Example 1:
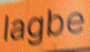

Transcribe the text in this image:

lagbe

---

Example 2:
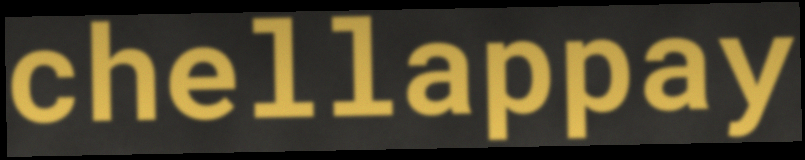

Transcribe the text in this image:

chellappay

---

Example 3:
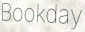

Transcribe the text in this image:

Bookday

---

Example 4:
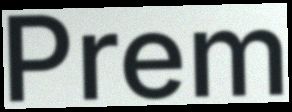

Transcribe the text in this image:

Prem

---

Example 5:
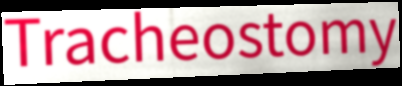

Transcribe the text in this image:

Tracheostomy